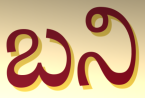
బని